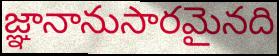
జ్ఞానానుసారమైనది